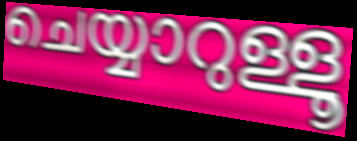
ചെയ്യാറുള്ളൂ